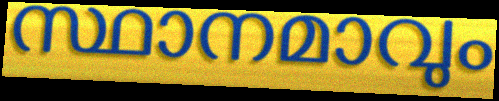
സ്ഥാനമാവും